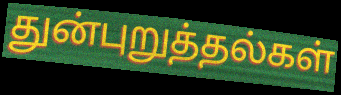
துன்புறுத்தல்கள்